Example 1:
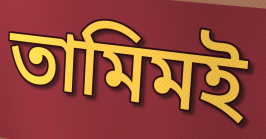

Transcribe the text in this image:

তামিমই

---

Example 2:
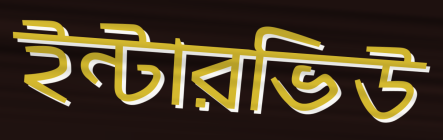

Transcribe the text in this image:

ইন্টারভিউ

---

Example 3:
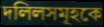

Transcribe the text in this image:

দলিলসমূহকে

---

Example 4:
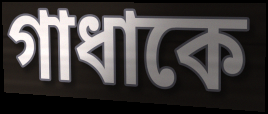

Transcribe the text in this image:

গাধাকে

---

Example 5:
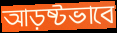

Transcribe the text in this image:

আড়ষ্টভাবে